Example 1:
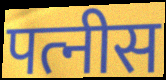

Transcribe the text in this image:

पत्‍नीस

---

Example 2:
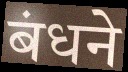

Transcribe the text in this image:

बंधने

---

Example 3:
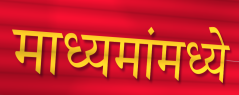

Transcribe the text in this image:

माध्यमांमध्ये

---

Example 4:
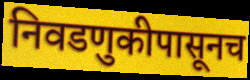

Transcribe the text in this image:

निवडणुकीपासूनच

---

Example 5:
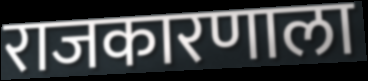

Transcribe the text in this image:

राजकारणाला